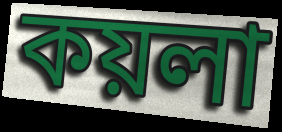
কয়লা